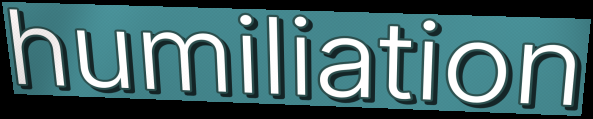
humiliation